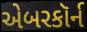
એબરકૉર્ન